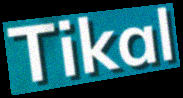
Tikal